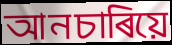
আনচাৰিয়ে